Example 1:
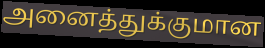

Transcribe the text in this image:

அனைத்துக்குமான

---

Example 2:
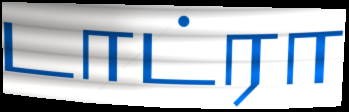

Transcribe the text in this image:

டாட்ரா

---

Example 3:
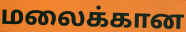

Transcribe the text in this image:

மலைக்கான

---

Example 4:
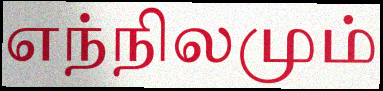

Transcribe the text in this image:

எந்நிலமும்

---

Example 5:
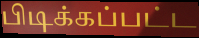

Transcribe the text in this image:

பிடிக்கப்பட்ட